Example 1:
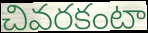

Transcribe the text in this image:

చివరకంటా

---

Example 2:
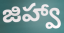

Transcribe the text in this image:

జిహ్వా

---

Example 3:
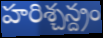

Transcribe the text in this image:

హరిశ్చన్ద్రం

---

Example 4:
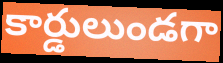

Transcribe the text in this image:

కార్డులుండగా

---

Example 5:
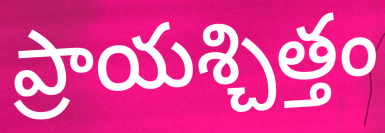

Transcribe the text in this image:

ప్రాయశ్చిత్తం